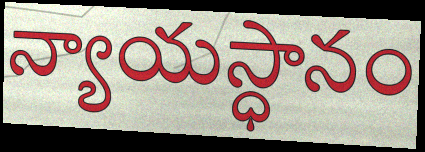
న్యాయస్ధానం